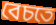
বেচতে